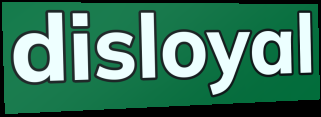
disloyal